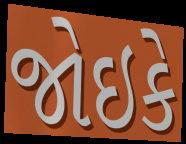
જોઇકે